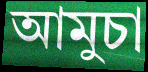
আমুচা